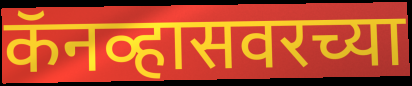
कॅनव्हासवरच्या